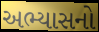
અભ્યાસનો